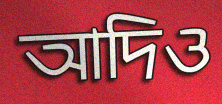
আদিও